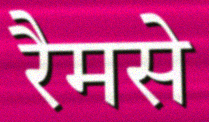
रैमसे